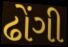
ઢોંગી